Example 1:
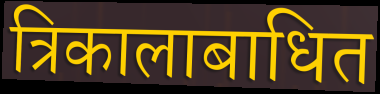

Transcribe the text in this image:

त्रिकालाबाधित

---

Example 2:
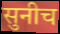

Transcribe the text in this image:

सुनीच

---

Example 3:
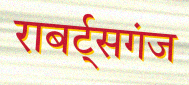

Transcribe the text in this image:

राबर्ट्सगंज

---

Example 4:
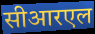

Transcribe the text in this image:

सीआरएल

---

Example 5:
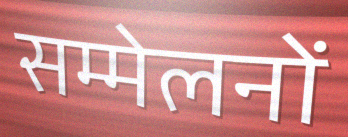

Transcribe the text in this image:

सम्‍मेलनों